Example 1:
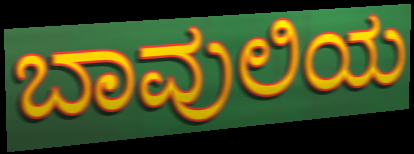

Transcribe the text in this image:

ಬಾವುಲಿಯ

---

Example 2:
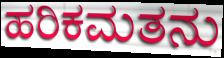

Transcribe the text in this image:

ಹರಿಕಮತನು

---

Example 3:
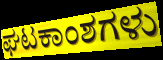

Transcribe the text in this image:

ಘಟಕಾಂಶಗಳು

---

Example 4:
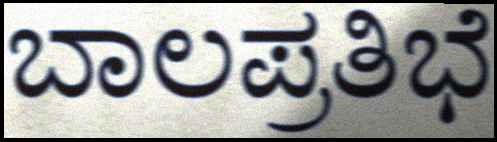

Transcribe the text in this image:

ಬಾಲಪ್ರತಿಭೆ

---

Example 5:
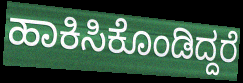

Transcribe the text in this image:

ಹಾಕಿಸಿಕೊಂಡಿದ್ದರೆ